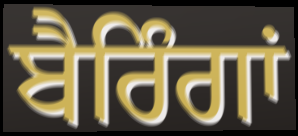
ਬੈਰਿੰਗਾਂ